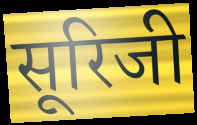
सूरिजी